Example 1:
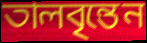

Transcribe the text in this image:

তালবৃন্তেন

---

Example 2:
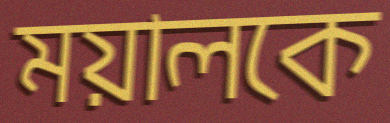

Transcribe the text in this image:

ময়ালকে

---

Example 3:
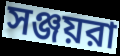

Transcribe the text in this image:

সঞ্জয়রা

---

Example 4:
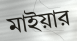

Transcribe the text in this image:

মাইয়ার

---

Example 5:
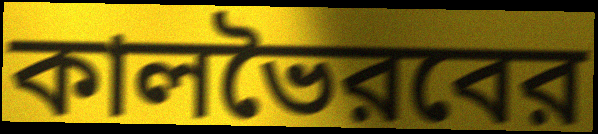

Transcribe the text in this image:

কালভৈরবের